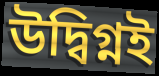
উদ্বিগ্নই